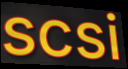
scsi